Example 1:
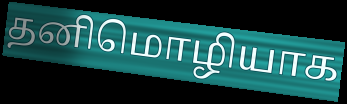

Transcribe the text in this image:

தனிமொழியாக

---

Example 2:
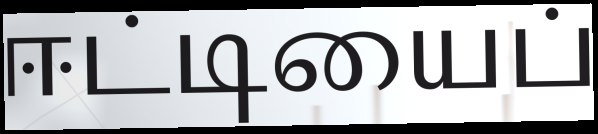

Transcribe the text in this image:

ஈட்டியைப்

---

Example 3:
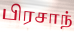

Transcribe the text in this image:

பிரசாந்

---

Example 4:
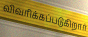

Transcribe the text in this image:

விவரிக்கப்படுகிறார்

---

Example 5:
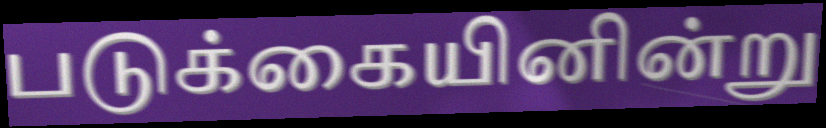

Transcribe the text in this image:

படுக்கையினின்று